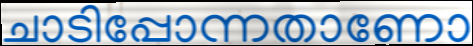
ചാടിപ്പോന്നതാണോ